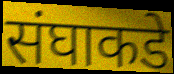
संघाकडे